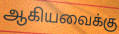
ஆகியவைக்கு